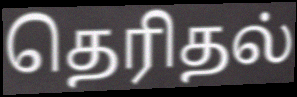
தெரிதல்